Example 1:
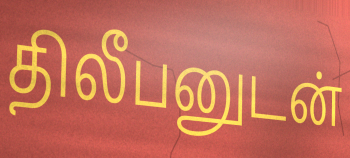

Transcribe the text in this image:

திலீபனுடன்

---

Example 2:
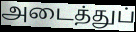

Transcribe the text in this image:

அடைத்துப்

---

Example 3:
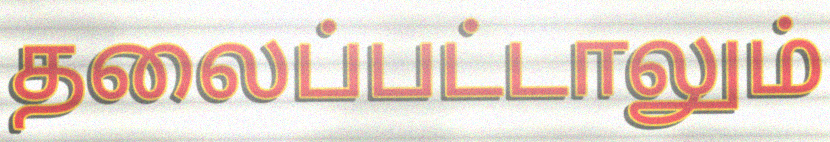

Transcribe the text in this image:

தலைப்பட்டாலும்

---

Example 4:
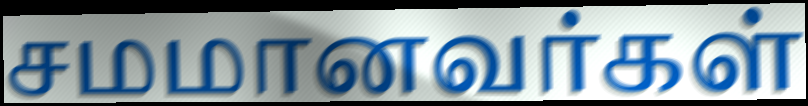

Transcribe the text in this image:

சமமானவர்கள்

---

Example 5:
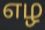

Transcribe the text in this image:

எழ